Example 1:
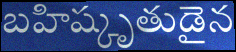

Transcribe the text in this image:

బహిష్కృతుడైన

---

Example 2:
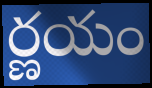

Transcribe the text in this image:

ర్ణయం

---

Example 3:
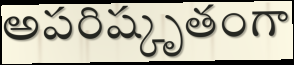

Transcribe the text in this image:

అపరిష్కృతంగా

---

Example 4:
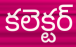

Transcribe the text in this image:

కలెక్టర్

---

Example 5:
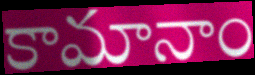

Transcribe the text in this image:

కామానాం